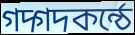
গদ্গদকন্ঠে